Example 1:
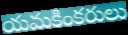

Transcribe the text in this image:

యమకింకరులు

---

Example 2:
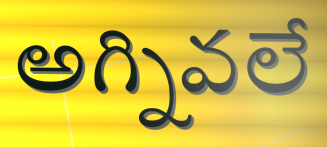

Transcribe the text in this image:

అగ్నివలే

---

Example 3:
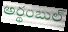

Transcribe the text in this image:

అర్థంబుల్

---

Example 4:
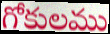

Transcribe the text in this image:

గోకులము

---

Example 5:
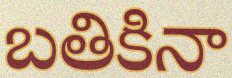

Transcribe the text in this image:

బతికినా